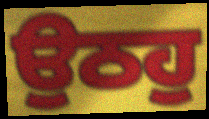
ਉਠਹੁ